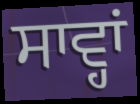
ਸਾਵ੍ਹਾਂ